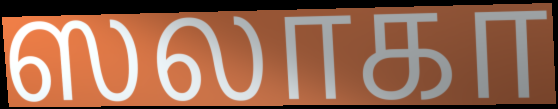
ஸலாகா